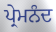
ਪ੍ਰੇਮਨੰਦ